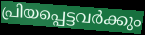
പ്രിയപ്പെട്ടവർക്കും